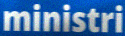
ministri